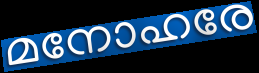
മനോഹരേ